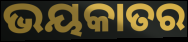
ଭୟକାତର